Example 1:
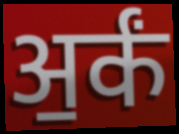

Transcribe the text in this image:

अ॒र्कं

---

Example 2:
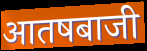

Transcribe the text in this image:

आतषबाजी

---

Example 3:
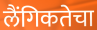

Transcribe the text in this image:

लैंगिकतेचा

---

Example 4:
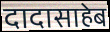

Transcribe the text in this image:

दादासाहेब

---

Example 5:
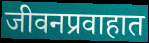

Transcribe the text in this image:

जीवनप्रवाहात